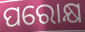
ପରୋକ୍ଷ